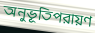
অনুভূতিপরায়ণ